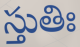
స్తుతిః